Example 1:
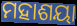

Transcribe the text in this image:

ମହାଶୟା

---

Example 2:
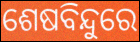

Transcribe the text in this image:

ଶେଷବିନ୍ଦୁରେ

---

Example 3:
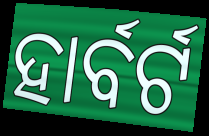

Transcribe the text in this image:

ହାର୍ବର୍ଟ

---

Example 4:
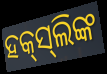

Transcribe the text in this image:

ହକ୍‌ସ୍‌ଲିଙ୍କ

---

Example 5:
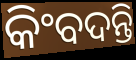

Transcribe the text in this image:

କିଂବଦନ୍ତି